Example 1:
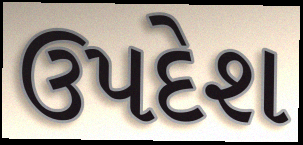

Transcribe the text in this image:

ઉપદેશ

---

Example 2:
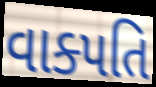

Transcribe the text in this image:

વાક્પતિ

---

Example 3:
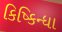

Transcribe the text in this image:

કિષ્કિન્ધા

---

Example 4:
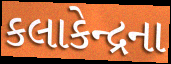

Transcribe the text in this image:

કલાકેન્દ્રના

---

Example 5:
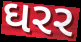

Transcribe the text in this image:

ઘરર